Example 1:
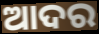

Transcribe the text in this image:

ଆଦର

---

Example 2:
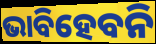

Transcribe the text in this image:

ଭାବିହେବନି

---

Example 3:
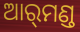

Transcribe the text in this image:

ଆର୍‌ମଣ୍ଡ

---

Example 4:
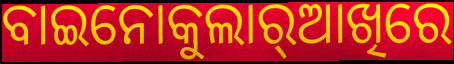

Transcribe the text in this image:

ବାଇନୋକୁଲାର୍‌ଆଖିରେ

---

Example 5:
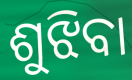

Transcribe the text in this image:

ଶୁଝିବା